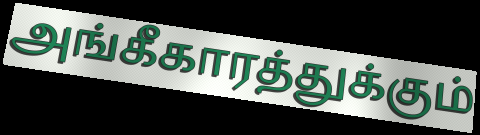
அங்கீகாரத்துக்கும்